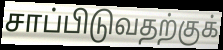
சாப்பிடுவதற்குக்